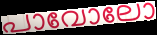
പാവോലോ